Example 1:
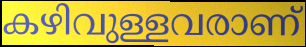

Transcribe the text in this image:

കഴിവുള്ളവരാണ്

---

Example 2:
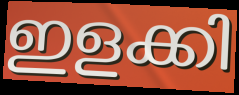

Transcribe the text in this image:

ഇളക്കി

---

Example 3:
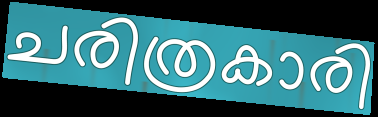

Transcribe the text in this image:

ചരിത്രകാരി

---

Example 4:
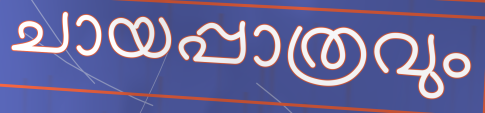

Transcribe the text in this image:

ചായപ്പാത്രവും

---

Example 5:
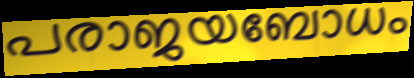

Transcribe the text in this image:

പരാജയബോധം